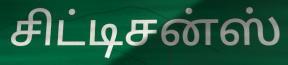
சிட்டிசன்ஸ்